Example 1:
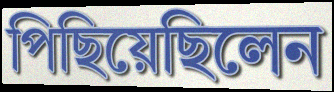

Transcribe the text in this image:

পিছিয়েছিলেন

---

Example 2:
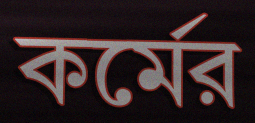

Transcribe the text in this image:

কর্মের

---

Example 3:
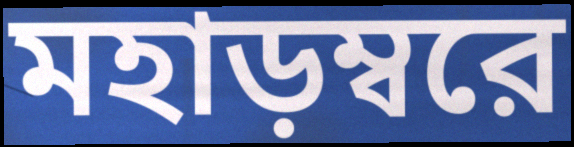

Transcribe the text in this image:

মহাড়ম্বরে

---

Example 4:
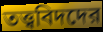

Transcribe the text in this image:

তত্ত্ববিদদের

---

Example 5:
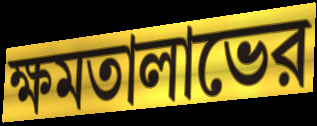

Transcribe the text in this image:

ক্ষমতালাভের